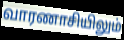
வாரணாசியிலும்